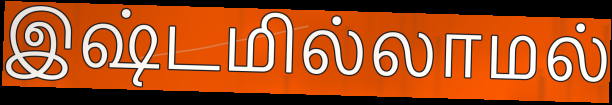
இஷ்டமில்லாமல்